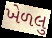
ખેળલુ